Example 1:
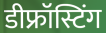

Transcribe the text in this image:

डीफ्रॉस्टिंग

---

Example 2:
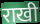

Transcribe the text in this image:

राखी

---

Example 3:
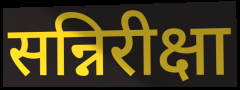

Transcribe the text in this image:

सन्निरीक्षा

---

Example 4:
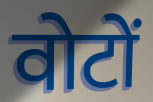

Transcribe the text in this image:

वोटों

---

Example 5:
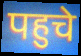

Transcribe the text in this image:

पहुचे